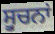
ਸੂਚਨਾਂ